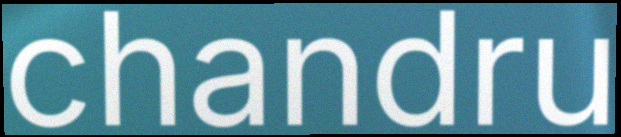
chandru